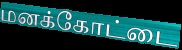
மனக்கோட்டை